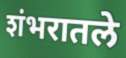
शंभरातले